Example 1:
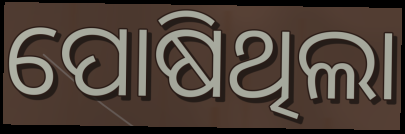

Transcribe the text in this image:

ପୋଷିଥିଲା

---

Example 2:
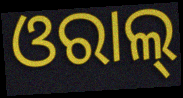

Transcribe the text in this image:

ଓରାଲ୍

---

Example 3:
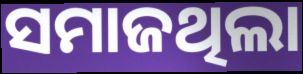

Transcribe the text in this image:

ସମାଜଥିଲା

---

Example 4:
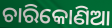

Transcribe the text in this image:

ଚାରିକୋଣିଆ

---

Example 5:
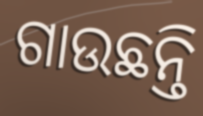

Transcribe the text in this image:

ଗାଉଛନ୍ତି